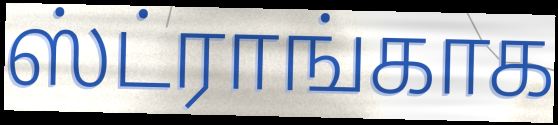
ஸ்ட்ராங்காக